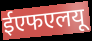
ईएफएलयू